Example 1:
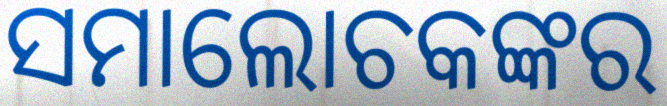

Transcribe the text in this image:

ସମାଲୋଚକଙ୍କର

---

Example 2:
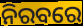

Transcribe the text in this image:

ନିରବରେ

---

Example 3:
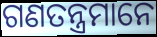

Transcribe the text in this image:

ଗଣତନ୍ତ୍ରମାନେ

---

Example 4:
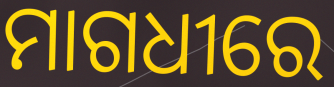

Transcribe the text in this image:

ମାଗଧୀରେ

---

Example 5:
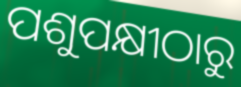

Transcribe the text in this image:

ପଶୁପକ୍ଷୀଠାରୁ